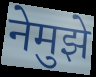
नेमुझे